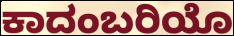
ಕಾದಂಬರಿಯೊ